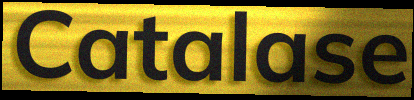
Catalase